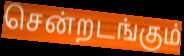
சென்றடங்கும்